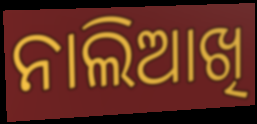
ନାଲିଆଖି